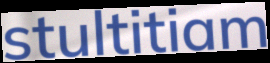
stultitiam